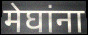
मेघांना